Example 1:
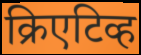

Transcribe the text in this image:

क्रिएटिव्ह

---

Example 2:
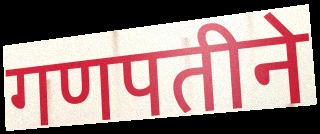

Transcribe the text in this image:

गणपतीने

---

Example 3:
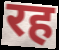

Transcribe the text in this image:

रह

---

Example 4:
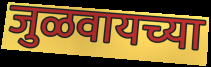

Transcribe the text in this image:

जुळवायच्या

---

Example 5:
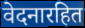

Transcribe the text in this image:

वेदनारहित